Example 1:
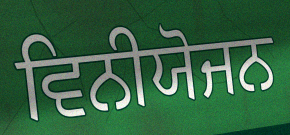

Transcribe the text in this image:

ਵਿਨੀਯੋਜਨ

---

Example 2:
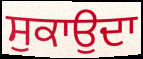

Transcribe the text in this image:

ਸੁਕਾਉਦਾ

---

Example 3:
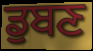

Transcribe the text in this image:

ਡੁਬਣ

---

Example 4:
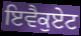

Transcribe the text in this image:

ਇਵੈਕੁਏਟ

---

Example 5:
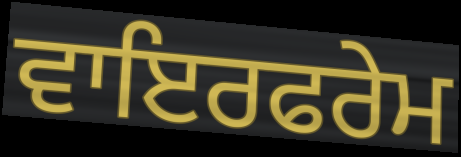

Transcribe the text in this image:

ਵਾਇਰਫਰੇਮ